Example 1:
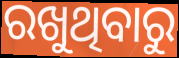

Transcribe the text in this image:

ରଖୁଥିବାରୁ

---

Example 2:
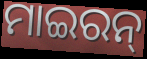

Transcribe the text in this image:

ମାଇରନ୍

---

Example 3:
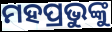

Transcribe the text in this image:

ମହପ୍ରଭୁଙ୍କୁ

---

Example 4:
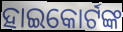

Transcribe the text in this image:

ହାଇକୋର୍ଟଙ୍କ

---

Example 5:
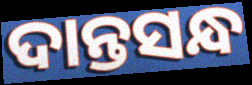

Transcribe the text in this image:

ଦାନ୍ତସନ୍ଧ